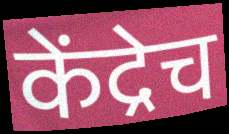
केंद्रेच